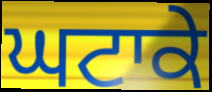
ਘਟਾਕੇ